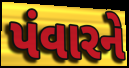
પંવારને